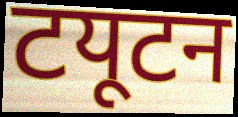
टयूटन